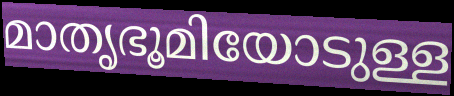
മാതൃഭൂമിയോടുള്ള